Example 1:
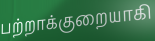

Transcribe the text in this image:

பற்றாக்குறையாகி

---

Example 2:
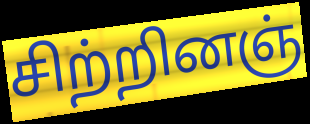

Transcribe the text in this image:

சிற்றினஞ்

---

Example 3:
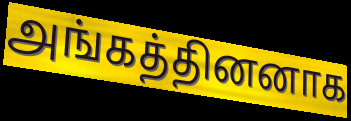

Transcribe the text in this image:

அங்கத்தினனாக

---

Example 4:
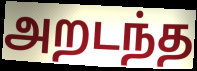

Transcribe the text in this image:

அறடந்த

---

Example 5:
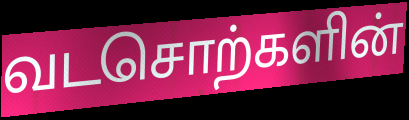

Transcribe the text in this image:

வடசொற்களின்